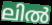
ലിൽ